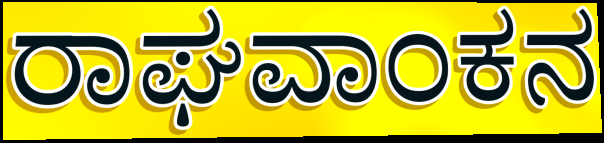
ರಾಘವಾಂಕನ